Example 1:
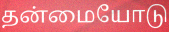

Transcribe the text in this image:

தன்மையோடு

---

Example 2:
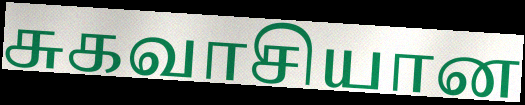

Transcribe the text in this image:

சுகவாசியான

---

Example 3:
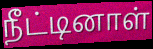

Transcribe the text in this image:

நீட்டினாள்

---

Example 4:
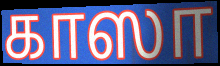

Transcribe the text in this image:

காஸா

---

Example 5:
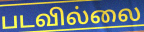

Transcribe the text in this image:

படவில்லை